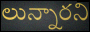
లున్నారని